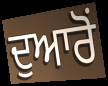
ਦੁਆਰੋਂ